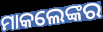
ମାକଲେଙ୍କର